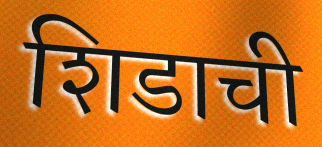
शिडाची